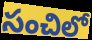
సంచిలో